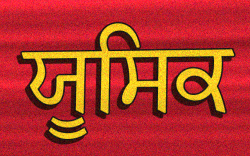
ਯੂਸਿਕ